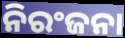
ନିରଂଜନା